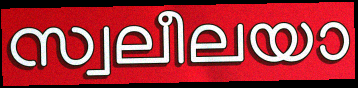
സ്വലീലയാ